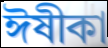
ঈষীকা